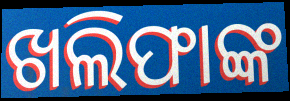
ଖଲିଫାଙ୍କ